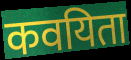
कवयिता